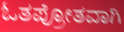
ಓತಪ್ರೋತವಾಗಿ